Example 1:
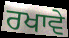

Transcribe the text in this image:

ਰਖਾਵੇ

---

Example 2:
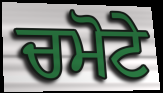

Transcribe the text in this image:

ਚਮੋਟੇ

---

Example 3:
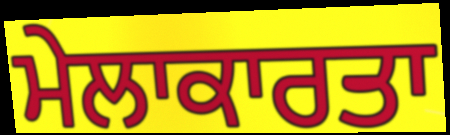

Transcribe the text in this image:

ਮੇਲਾਕਾਰਤਾ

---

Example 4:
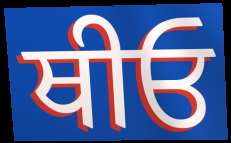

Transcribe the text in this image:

ਥੀਓ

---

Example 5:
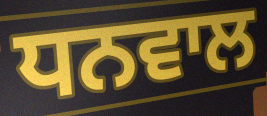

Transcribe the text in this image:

ਧਨਵਾਲ